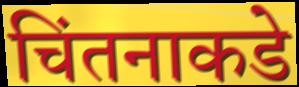
चिंतनाकडे